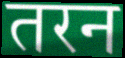
तरन